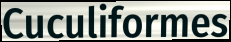
Cuculiformes